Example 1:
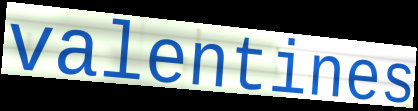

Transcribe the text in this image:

valentines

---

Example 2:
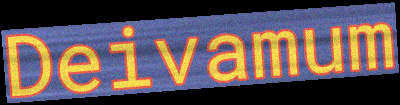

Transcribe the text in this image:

Deivamum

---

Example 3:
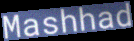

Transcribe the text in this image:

Mashhad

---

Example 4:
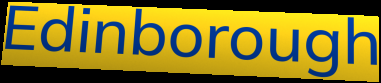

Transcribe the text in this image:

Edinborough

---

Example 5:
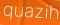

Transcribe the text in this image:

quazih